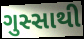
ગુસ્સાથી